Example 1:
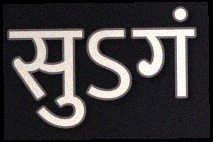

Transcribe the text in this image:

सुऽगं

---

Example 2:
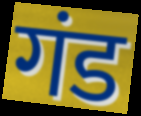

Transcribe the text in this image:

गंड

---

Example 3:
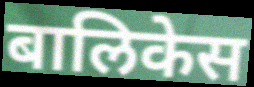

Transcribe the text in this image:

बालिकेस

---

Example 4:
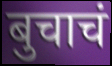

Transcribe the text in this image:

बुचाचं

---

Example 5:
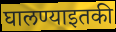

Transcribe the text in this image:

घालण्याइतकी